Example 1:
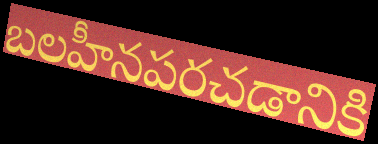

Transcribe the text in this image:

బలహీనపరచడానికి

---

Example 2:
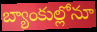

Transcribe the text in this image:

బ్యాంకుల్లోనూ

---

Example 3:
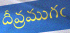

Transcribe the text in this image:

దీవ్రముగఁ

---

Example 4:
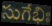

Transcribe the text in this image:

సుగేభిః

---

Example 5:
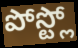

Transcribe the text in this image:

పోస్ట్లో